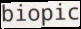
biopic